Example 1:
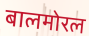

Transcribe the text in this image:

बालमोरल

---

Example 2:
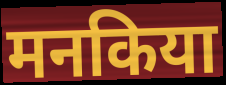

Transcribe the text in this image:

मनकिया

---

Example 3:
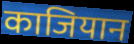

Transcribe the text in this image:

काजियान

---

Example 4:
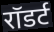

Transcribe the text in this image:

रॉडर्ट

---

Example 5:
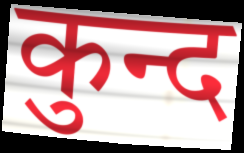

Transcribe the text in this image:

कुन्द